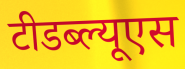
टीडब्ल्यूएस